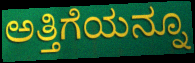
ಅತ್ತಿಗೆಯನ್ನೂ